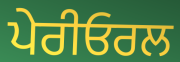
ਪੇਰੀਓਰਲ